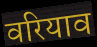
वरियाव